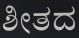
ಶೀತದ